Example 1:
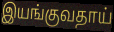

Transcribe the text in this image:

இயங்குவதாய்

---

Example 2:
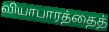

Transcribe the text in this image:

வியாபாரத்தைத்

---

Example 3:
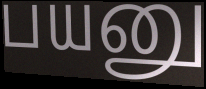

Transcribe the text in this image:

பயனு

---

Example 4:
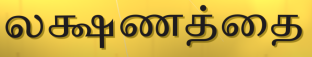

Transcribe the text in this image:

லக்ஷணத்தை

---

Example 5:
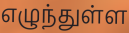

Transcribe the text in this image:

எழுந்துள்ள